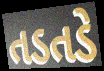
તડતડે